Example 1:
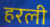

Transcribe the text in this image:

हरली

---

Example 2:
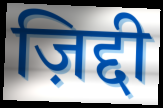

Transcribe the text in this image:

ज़िद्दी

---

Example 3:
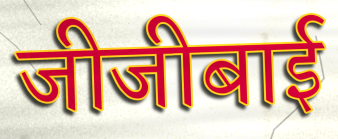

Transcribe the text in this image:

जीजीबाई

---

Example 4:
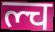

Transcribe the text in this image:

ल्च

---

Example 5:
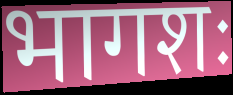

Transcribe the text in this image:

भागशः